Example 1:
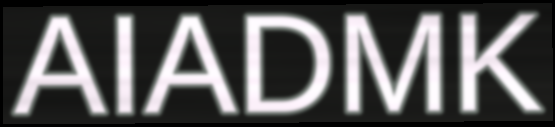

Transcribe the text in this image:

AIADMK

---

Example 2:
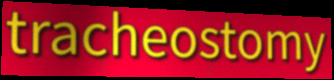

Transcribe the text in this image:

tracheostomy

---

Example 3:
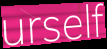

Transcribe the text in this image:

urself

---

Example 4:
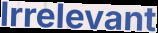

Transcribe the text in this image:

Irrelevant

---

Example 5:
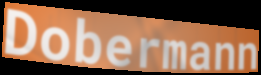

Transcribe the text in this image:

Dobermann